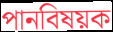
পানবিষয়ক